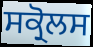
ਸਕ੍ਰੋਲਸ